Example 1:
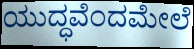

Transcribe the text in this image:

ಯುದ್ಧವೆಂದಮೇಲೆ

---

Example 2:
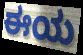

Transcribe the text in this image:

ಈಯ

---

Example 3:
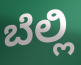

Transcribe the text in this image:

ಬೆಲ್ಲಿ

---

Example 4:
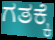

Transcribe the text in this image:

ಗತಕ್ಕೆ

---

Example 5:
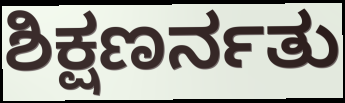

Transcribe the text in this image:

ಶಿಕ್ಷಣರ್ನತು